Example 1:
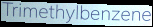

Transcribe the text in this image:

Trimethylbenzene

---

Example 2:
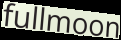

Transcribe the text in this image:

fullmoon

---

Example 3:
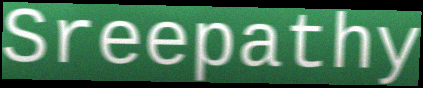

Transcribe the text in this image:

Sreepathy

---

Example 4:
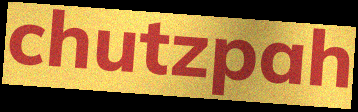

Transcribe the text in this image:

chutzpah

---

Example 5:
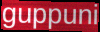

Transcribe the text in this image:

guppuni